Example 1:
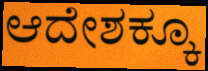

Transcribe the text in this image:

ಆದೇಶಕ್ಕೂ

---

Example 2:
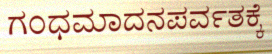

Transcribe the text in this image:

ಗಂಧಮಾದನಪರ್ವತಕ್ಕೆ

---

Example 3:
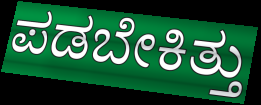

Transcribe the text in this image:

ಪಡಬೇಕಿತ್ತು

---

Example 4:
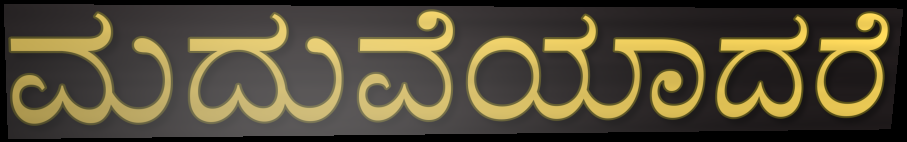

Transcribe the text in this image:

ಮದುವೆಯಾದರೆ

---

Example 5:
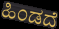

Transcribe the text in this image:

ಹಿಂಡದೆ